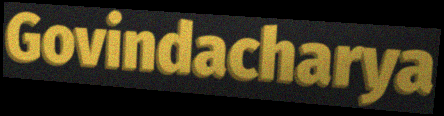
Govindacharya